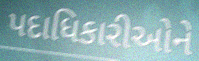
પદાધિકારીઓને